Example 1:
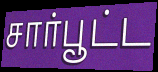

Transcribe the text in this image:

சார்பூட்ட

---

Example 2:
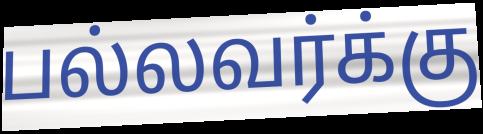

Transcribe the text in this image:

பல்லவர்க்கு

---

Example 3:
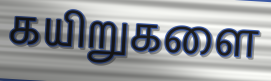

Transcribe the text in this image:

கயிறுகளை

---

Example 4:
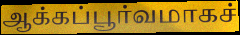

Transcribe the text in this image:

ஆக்கப்பூர்வமாகச்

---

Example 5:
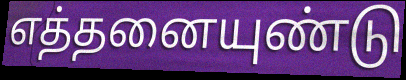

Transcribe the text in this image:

எத்தனையுண்டு